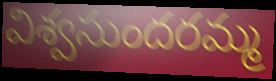
విశ్వసుందరమ్మ